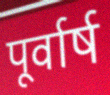
पूर्वार्ष